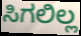
ಸಿಗಲಿಲ್ಲ